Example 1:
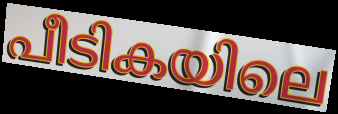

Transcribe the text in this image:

പീടികയിലെ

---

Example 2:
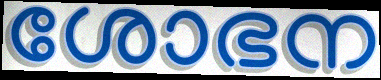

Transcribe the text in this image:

ശോഭന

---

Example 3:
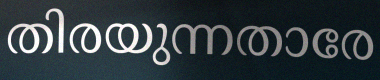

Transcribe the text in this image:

തിരയുന്നതാരേ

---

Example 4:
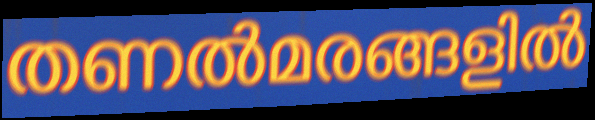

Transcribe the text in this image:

തണൽമരങ്ങളിൽ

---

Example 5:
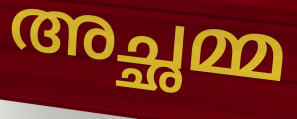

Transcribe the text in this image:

അച്ഛമ്മ